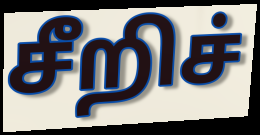
சீறிச்